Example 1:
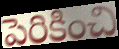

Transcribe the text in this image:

పెరికించి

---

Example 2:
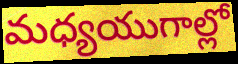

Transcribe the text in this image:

మధ్యయుగాల్లో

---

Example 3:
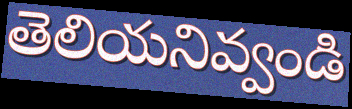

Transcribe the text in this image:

తెలియనివ్వండి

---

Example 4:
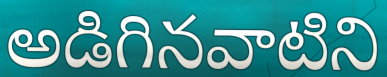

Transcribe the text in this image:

అడిగినవాటిని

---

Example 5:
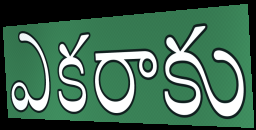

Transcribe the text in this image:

ఎకరాకు